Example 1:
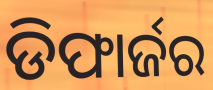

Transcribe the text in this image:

ଡିଫାର୍ଜର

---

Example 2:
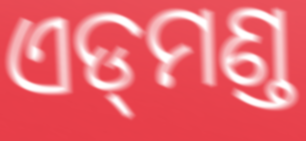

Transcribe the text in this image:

ଏଡ୍‌ମଣ୍ଡ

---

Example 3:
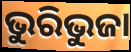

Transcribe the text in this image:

ଭୁରିଭୁଜା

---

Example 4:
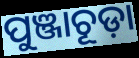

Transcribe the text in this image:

ପୁଞ୍ଜାଚୂଡ଼ା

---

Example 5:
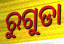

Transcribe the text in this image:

ରୁଗୁଡା